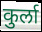
कुर्ला